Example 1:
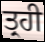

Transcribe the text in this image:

ਤ੍ਰਹੀ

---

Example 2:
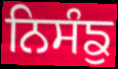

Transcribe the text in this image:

ਨਿਸੰਙੁ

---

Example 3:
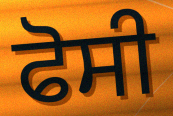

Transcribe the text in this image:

ਫੋਸੀ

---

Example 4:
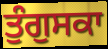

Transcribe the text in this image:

ਤੁੰਗੁਸਕਾ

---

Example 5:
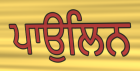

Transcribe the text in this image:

ਪਾਉਲਿਨ